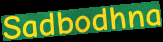
Sadbodhna